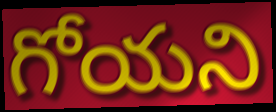
గోయని